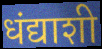
धंद्याशी